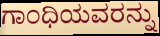
ಗಾಂಧಿಯವರನ್ನು